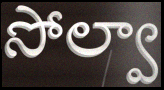
సోల్వా